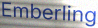
Emberling